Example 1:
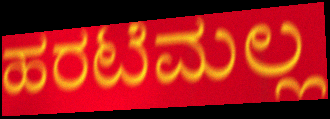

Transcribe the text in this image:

ಹರಟೆಮಲ್ಲ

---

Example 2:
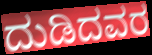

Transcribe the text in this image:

ದುಡಿದವರ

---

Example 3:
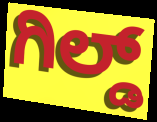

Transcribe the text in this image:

ಗಿಲ್ಡ್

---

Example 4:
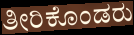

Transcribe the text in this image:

ತೀರಿಕೊಂಡರು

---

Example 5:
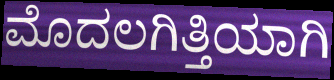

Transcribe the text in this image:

ಮೊದಲಗಿತ್ತಿಯಾಗಿ